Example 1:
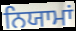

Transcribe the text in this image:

ਨਿਯਾਮਾਂ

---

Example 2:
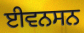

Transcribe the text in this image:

ਈਵਨਸਨ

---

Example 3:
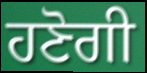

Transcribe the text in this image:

ਹਣੋਗੀ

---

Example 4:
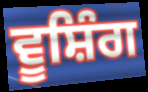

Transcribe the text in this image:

ਵੂਸ਼ਿੰਗ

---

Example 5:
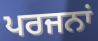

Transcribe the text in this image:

ਪਰਜਨਾਂ